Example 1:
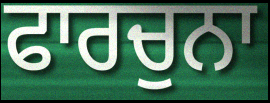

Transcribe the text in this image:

ਫਾਰਚੁਨਾ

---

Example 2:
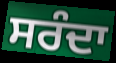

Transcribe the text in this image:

ਸਰੰਦਾ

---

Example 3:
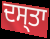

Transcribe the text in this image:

ਦਸ੍ਤਾ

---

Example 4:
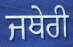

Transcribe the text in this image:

ਜਥੇਰੀ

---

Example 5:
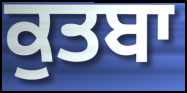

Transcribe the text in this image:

ਕੁਤਬਾ